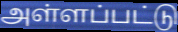
அள்ளப்பட்டு